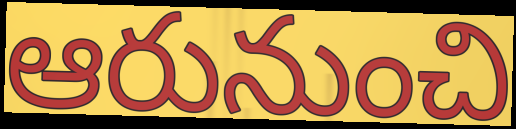
ఆరునుంచి